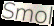
Smol